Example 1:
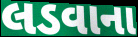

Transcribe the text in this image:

લડવાના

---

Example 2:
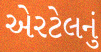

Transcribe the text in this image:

એરટેલનું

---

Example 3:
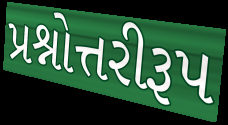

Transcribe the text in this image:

પ્રશ્નોત્તરીરૂપ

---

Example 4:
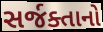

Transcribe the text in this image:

સર્જક્તાનો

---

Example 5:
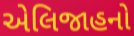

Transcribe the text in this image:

એલિજાહનો